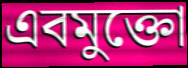
এবমুক্তো